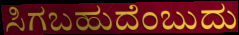
ಸಿಗಬಹುದೆಂಬುದು